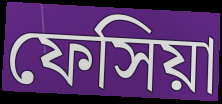
ফেসিয়া